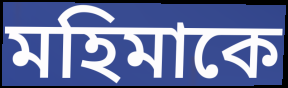
মহিমাকে